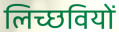
लिच्छवियों